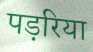
पड़रिया